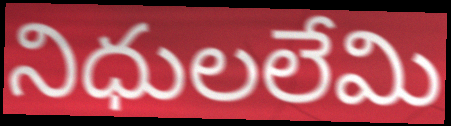
నిధులలేమి